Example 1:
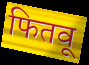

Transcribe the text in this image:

फितवू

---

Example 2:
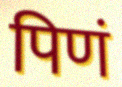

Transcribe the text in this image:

पिणं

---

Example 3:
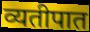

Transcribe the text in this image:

व्यतीपात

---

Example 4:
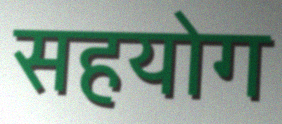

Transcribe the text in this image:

सहयोग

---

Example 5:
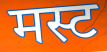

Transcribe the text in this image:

मस्ट